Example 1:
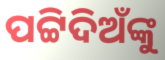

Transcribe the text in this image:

ପଟ୍ଟିଦିଅଁଙ୍କୁ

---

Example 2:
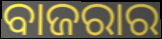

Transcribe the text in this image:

ବାଜରାର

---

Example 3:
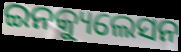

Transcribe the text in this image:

ଇନକ୍ୟୁଲେସନ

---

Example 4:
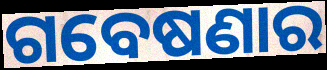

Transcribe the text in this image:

ଗବେଷଣାର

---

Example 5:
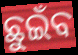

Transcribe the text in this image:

ଛୁଇଁବ